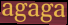
agaga